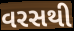
વરસથી